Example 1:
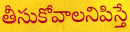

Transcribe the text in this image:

తీసుకోవాలనిపిస్తే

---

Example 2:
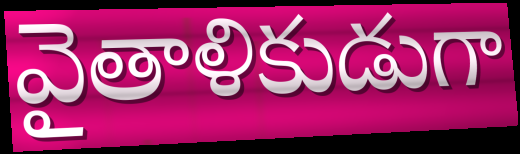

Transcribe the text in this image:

వైతాళికుడుగా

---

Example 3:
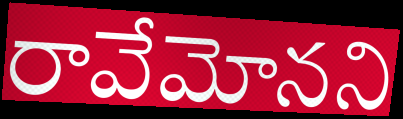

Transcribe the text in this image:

రావేమోనని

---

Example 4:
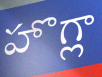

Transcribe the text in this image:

హొగ్లా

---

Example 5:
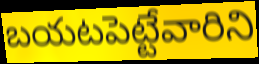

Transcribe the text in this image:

బయటపెట్టేవారిని